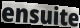
ensuite